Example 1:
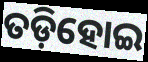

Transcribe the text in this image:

ତଡ଼ିହୋଇ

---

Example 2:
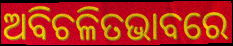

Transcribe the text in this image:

ଅବିଚଳିତଭାବରେ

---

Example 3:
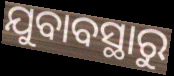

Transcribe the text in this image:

ଯୁବାବସ୍ଥାରୁ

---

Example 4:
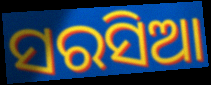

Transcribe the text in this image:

ସରସିଆ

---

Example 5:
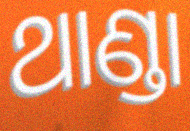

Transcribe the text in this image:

ଥାଣ୍ଡା